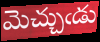
మెచ్చుఁడు